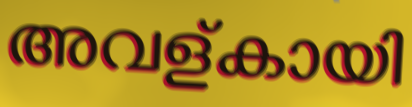
അവള്കായി